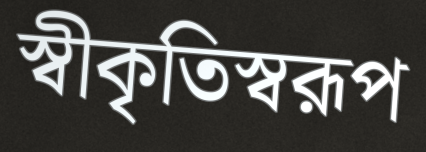
স্বীকৃতিস্বরূপ